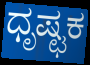
ಧೃಷ್ಟಕ